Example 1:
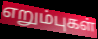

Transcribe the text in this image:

எறும்புகள்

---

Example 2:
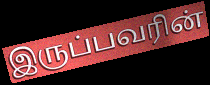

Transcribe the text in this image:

இருப்பவரின்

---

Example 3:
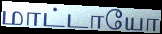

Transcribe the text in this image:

மாட்டாயோ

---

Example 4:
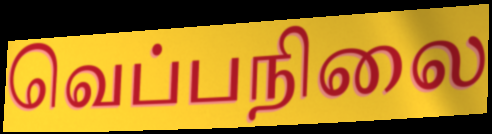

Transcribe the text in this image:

வெப்பநிலை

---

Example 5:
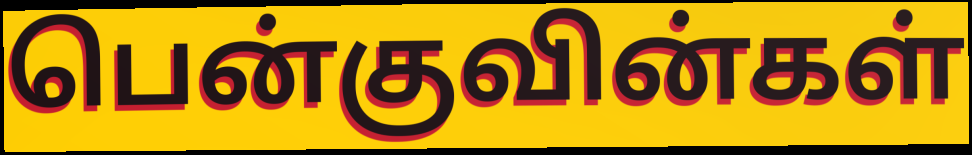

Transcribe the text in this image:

பென்குவின்கள்